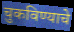
चुकविण्याचे